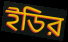
ইডির